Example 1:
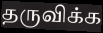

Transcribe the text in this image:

தருவிக்க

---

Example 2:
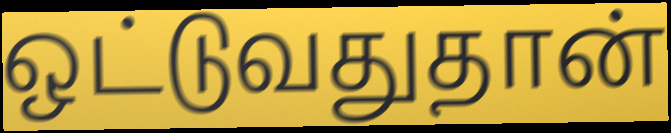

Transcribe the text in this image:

ஒட்டுவதுதான்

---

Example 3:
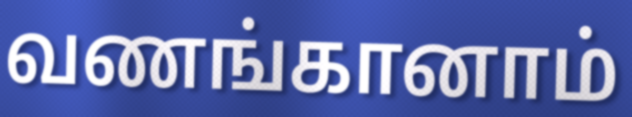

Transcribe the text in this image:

வணங்கானாம்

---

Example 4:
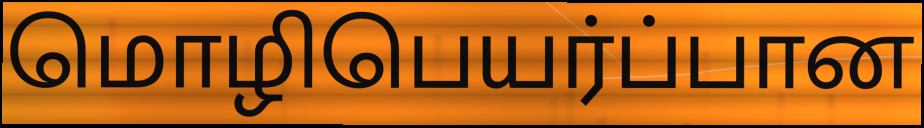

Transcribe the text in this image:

மொழிபெயர்ப்பான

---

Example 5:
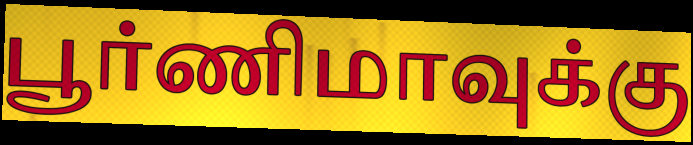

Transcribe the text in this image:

பூர்ணிமாவுக்கு